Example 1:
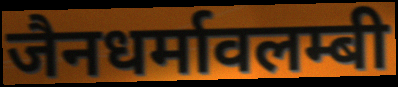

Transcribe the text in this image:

जैनधर्मावलम्बी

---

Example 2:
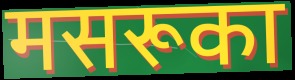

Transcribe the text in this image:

मसरूका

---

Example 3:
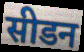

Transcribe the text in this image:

सीडन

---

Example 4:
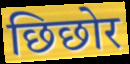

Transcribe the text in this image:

छिछोर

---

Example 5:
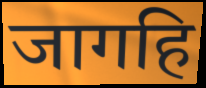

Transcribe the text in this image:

जागहि